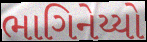
ભાગિનેય્યો